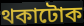
থকাটোক